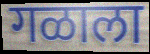
गळाला